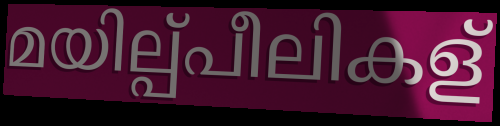
മയില്പ്പീലികള്